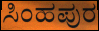
ಸಿಂಹಪುರ